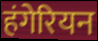
हंगेरियन